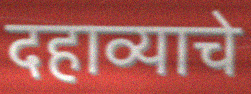
दहाव्याचे